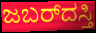
ಜಬರ್‌ದಸ್ತಿ